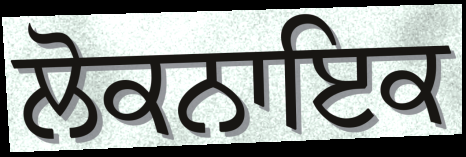
ਲੋਕਨਾਇਕ